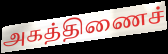
அகத்திணைச்